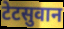
टेटसुवान